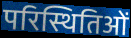
परिस्थितिओं